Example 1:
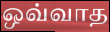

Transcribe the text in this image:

ஒவ்வாத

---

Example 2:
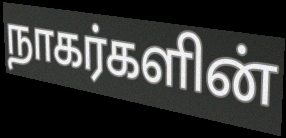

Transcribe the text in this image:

நாகர்களின்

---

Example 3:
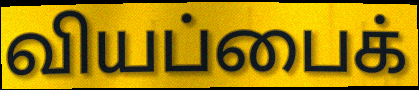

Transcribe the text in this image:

வியப்பைக்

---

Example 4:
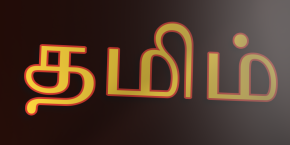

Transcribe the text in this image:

தமிம்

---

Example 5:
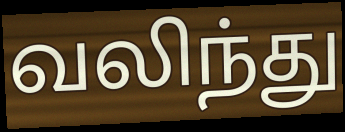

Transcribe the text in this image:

வலிந்து